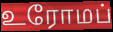
உரோமப்